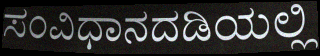
ಸಂವಿಧಾನದಡಿಯಲ್ಲಿ